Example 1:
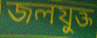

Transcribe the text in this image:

জলযুক্ত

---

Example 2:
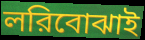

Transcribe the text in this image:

লরিবোঝাই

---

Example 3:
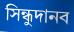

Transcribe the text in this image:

সিন্ধুদানব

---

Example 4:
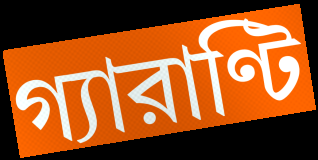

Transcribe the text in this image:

গ্যারাণ্টি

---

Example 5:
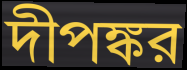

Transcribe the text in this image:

দীপঙ্কর